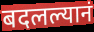
बदलल्यानं